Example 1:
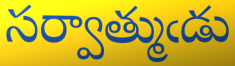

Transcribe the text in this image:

సర్వాత్ముఁడు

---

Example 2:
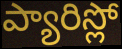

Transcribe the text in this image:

ప్యారిస్లో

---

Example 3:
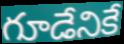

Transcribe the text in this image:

గూడేనికే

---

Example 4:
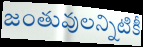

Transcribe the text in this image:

జంతువులన్నిటికీ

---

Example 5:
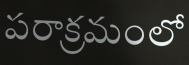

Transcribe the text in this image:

పరాక్రమంలో